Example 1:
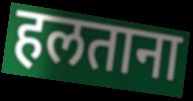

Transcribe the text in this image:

हलताना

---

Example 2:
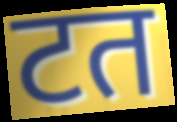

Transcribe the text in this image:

टत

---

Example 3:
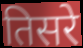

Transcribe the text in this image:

तिसरे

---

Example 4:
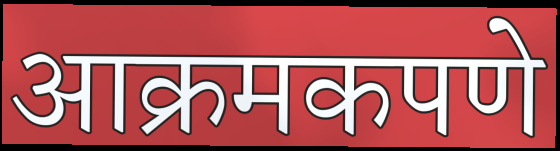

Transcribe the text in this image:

आक्रमकपणे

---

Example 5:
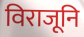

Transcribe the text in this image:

विराजूनि